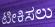
ಟೀಕಿಸಲು